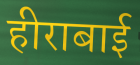
हीराबाई